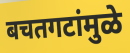
बचतगटांमुळे